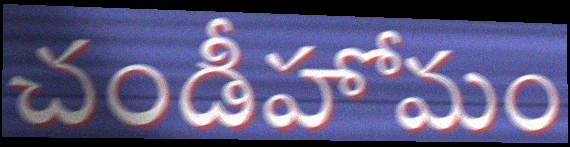
చండీహోమం